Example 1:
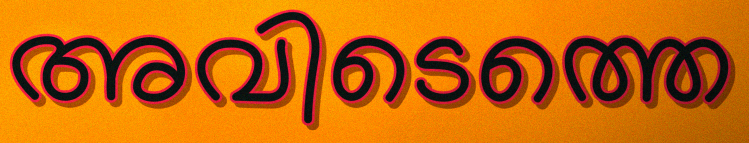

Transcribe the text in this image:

അവിടെത്തെ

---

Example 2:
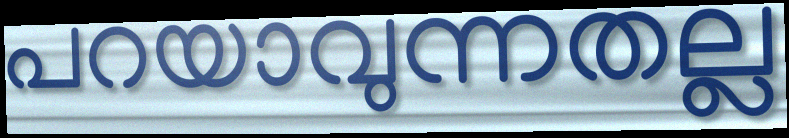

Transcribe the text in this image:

പറയാവുന്നതല്ല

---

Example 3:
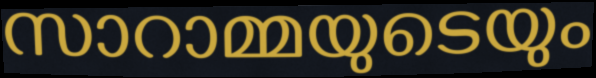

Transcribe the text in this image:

സാറാമ്മയുടെയും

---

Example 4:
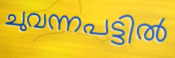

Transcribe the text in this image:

ചുവന്നപട്ടിൽ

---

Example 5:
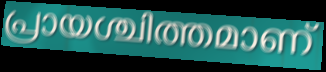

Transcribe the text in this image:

പ്രായശ്ചിത്തമാണ്